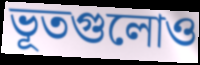
ভূতগুলোও